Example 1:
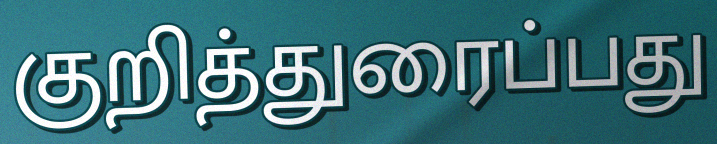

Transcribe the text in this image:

குறித்துரைப்பது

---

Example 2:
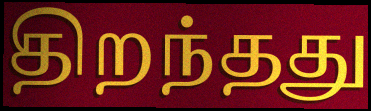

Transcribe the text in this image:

திறந்தது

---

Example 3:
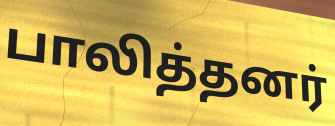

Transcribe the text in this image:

பாலித்தனர்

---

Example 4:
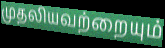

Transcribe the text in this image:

முதலியவற்றையும்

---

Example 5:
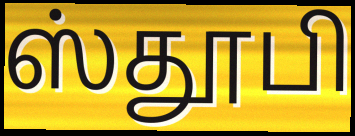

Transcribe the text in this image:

ஸ்தூபி